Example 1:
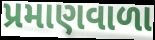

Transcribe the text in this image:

પ્રમાણવાળા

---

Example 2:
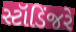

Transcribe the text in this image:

સ્ટૉડિંજરે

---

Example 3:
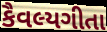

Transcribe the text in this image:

કૈવલ્યગીતા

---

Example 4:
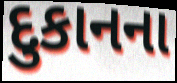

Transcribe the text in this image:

દુકાનના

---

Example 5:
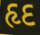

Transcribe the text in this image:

હૃદ